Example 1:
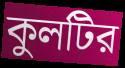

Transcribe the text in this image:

কুলটির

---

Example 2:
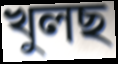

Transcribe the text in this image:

খুলছ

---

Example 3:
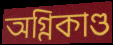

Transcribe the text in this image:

অগ্নিকাণ্ড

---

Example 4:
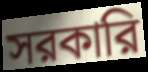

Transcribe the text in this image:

সরকারি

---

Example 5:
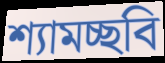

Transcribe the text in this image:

শ্যামচ্ছবি